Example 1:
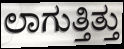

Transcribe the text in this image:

ಲಾಗುತ್ತಿತ್ತು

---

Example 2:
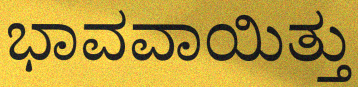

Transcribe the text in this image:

ಭಾವವಾಯಿತ್ತು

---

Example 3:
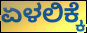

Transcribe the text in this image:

ಏಳಲಿಕ್ಕೆ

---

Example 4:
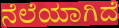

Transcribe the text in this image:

ನೆಲೆಯಾಗಿದೆ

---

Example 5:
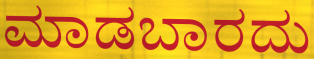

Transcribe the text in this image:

ಮಾಡಬಾರದು